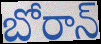
బోరాన్